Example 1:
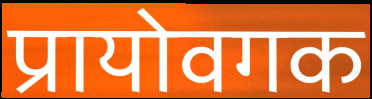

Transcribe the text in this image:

प्रायोवगक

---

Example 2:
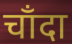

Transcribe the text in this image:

चाँदा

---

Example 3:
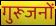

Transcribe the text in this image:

गुरूजनों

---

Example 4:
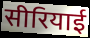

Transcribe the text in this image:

सीरियाई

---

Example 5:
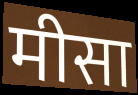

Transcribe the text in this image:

मीसा